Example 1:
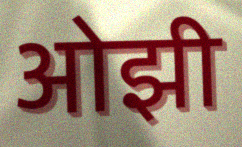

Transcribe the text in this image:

ओझी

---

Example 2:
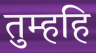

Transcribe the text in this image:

तुम्हहि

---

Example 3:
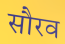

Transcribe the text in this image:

सौरव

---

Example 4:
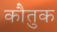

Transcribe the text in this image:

कौतुक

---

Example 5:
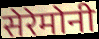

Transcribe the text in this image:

सेरेमोनी